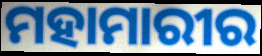
ମହାମାରୀର